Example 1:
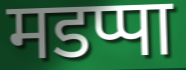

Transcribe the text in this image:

मडप्पा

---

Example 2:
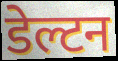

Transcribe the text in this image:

डेल्टन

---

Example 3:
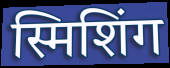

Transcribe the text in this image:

स्मिशिंग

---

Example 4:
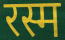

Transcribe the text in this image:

रस्म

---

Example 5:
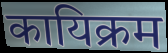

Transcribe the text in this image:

कायिक्रम